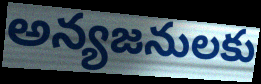
అన్యజనులకు